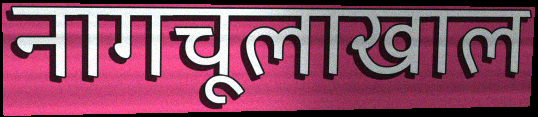
नागचूलाखाल